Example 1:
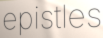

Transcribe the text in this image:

epistles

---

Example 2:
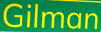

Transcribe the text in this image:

Gilman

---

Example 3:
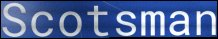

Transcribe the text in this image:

Scotsman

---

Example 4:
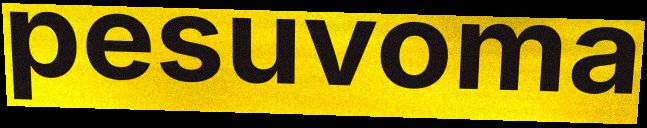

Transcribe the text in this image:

pesuvoma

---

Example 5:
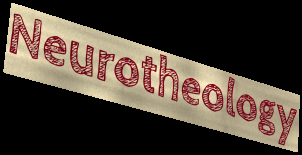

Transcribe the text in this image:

Neurotheology